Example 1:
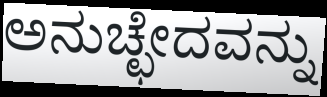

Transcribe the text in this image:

ಅನುಚ್ಛೇದವನ್ನು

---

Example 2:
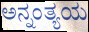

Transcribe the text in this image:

ಅನ್ನಂತ್ಯಯ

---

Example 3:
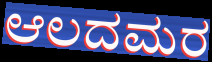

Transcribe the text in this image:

ಆಲದಮರ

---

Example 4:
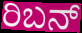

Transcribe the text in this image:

ರಿಬನ್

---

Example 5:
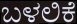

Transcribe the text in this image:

ಬಳಲಿಕೆ